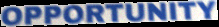
OPPORTUNITY